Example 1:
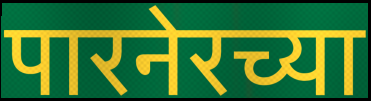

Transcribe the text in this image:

पारनेरच्या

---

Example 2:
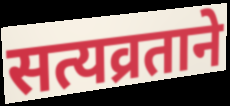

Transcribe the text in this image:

सत्यव्रताने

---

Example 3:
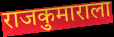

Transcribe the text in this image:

राजकुमाराला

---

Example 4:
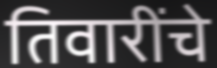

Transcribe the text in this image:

तिवारींचे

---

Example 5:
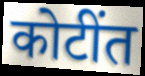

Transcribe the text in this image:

कोटींत